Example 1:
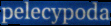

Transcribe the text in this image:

pelecypoda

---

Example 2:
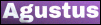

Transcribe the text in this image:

Agustus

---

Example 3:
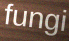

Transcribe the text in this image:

fungi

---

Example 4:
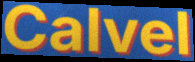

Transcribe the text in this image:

Calvel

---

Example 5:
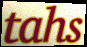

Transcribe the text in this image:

tahs